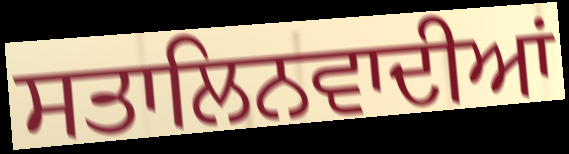
ਸਤਾਲਿਨਵਾਦੀਆਂ